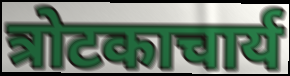
त्रोटकाचार्य